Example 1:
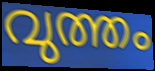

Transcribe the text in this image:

വുത്തം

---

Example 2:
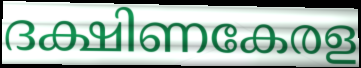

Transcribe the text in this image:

ദക്ഷിണകേരള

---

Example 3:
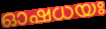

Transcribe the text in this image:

ഓഷധയഃ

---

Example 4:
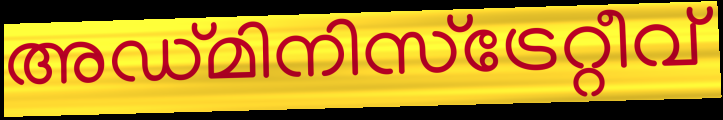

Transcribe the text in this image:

അഡ്മിനിസ്ട്രേറ്റീവ്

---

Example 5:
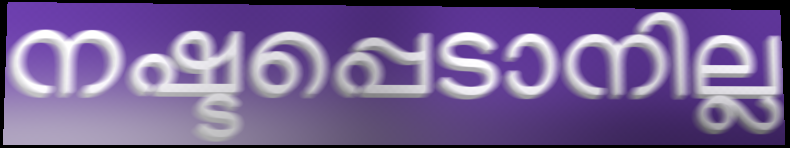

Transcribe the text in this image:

നഷ്ടപ്പെടാനില്ല